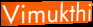
Vimukthi